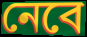
নেবে